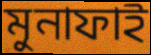
মুনাফাই